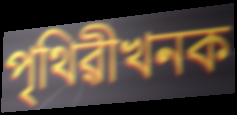
পৃথিৱীখনক